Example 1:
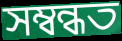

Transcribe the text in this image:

সম্বন্ধত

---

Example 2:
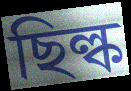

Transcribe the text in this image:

ছিল্ক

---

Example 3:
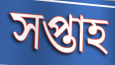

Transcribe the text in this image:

সপ্তাহ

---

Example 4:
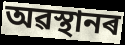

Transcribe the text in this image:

অৱস্থানৰ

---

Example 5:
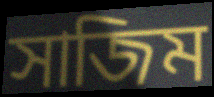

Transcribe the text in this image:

সাজিম